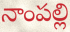
నాంపల్లి